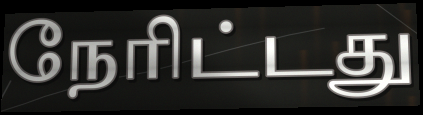
நேரிட்டது